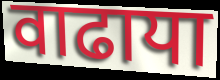
वाढाया